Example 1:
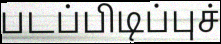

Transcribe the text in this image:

படப்பிடிப்புச்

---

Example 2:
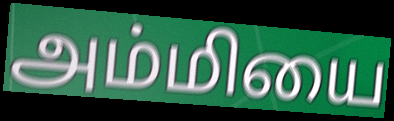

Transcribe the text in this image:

அம்மியை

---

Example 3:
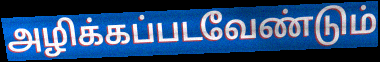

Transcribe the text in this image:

அழிக்கப்படவேண்டும்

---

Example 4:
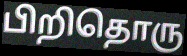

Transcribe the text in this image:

பிறிதொரு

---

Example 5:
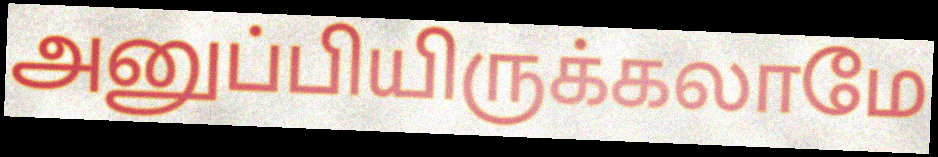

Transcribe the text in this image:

அனுப்பியிருக்கலாமே